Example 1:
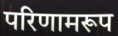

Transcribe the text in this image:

परिणामरूप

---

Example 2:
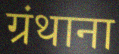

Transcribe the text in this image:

ग्रंथाना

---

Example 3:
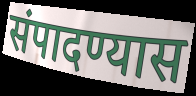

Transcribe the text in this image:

संपादण्यास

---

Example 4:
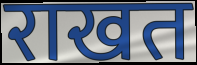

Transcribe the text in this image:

राखत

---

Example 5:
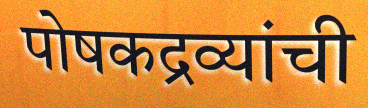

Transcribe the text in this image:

पोषकद्रव्यांची